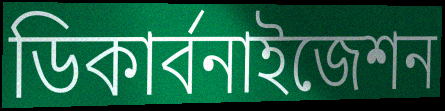
ডিকার্বনাইজেশন